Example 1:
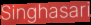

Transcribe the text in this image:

Singhasari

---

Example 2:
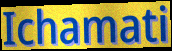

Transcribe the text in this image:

Ichamati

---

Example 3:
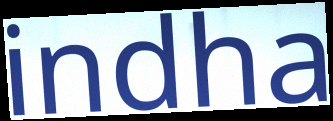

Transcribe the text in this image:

indha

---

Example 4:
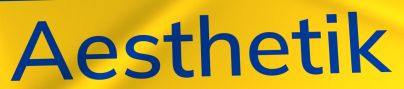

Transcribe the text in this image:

Aesthetik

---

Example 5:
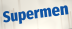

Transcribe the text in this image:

Supermen